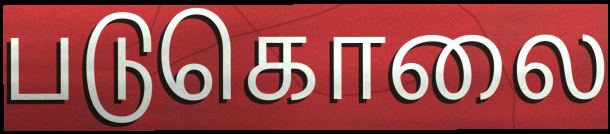
படுகொலை